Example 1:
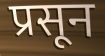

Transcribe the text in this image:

प्रसून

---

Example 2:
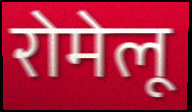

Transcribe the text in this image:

रोमेलू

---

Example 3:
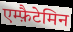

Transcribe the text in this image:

एम्फ़ैटेमिन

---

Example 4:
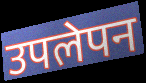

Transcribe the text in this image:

उपलेपन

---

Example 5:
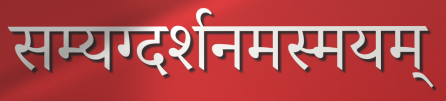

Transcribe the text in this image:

सम्यग्दर्शनमस्मयम्